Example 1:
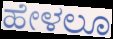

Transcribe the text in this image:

ಹೇಳಲೂ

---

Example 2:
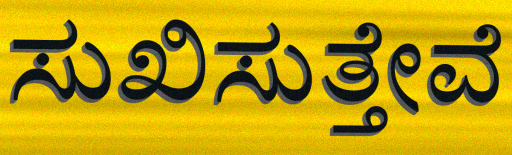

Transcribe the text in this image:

ಸುಖಿಸುತ್ತೇವೆ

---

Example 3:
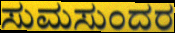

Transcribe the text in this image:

ಸುಮಸುಂದರ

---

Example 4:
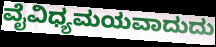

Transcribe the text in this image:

ವೈವಿಧ್ಯಮಯವಾದುದು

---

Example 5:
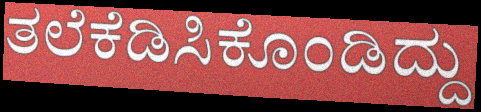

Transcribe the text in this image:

ತಲೆಕೆಡಿಸಿಕೊಂಡಿದ್ದು